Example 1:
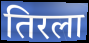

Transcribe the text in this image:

तिरला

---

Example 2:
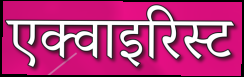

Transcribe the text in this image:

एक्वाइरिस्ट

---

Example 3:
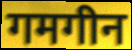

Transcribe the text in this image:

गमगीन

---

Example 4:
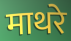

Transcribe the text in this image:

माथरे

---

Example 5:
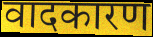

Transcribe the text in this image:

वादकारण